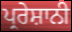
ਪ੍ਰਰੇਸ਼ਾਨੀ